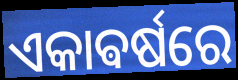
ଏକାଵର୍ଷରେ